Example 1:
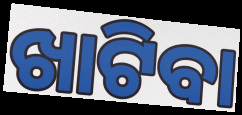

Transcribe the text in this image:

ଖାଟିବା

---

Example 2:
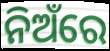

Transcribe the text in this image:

ନିଅଁରେ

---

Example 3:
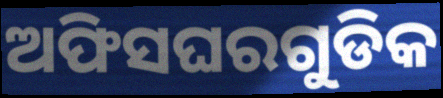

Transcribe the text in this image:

ଅଫିସଘରଗୁଡିକ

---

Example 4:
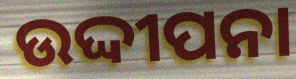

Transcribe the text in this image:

ଉଦ୍ଦୀପନା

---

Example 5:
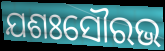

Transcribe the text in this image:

ଯଶଃସୌରଭ